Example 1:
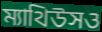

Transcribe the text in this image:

ম্যাথিউসও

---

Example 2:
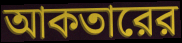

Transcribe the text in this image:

আকতারের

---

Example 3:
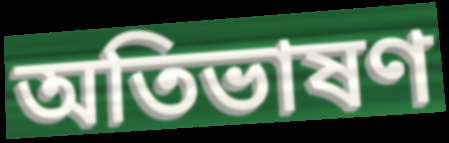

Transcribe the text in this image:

অতিভাষণ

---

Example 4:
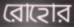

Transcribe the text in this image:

রোহোর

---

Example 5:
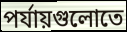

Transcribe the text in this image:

পর্যায়গুলোতে